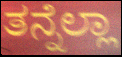
ತನ್ನೆಲ್ಲಾ